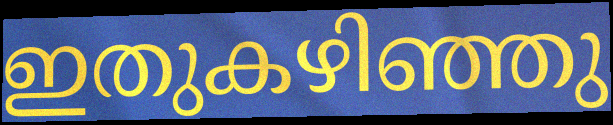
ഇതുകഴിഞ്ഞു